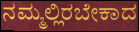
ನಮ್ಮಲ್ಲಿರಬೇಕಾದ